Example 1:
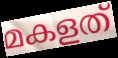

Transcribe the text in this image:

മകളത്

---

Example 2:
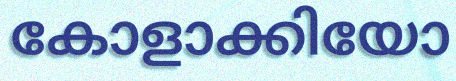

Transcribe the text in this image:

കോളാക്കിയോ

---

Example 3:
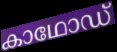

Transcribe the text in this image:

കാഥോഡ്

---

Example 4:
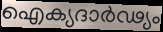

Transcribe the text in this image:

ഐക്യദാർഢ്യം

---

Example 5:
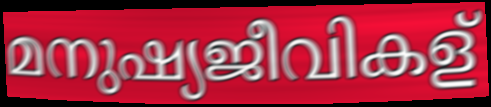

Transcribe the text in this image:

മനുഷ്യജീവികള്